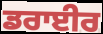
ਡਰਾਈਰ